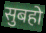
सुबहो